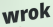
wrok